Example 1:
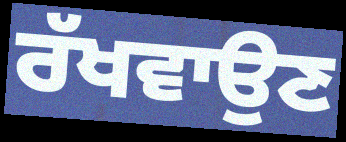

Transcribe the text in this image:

ਰੱਖਵਾਉਣ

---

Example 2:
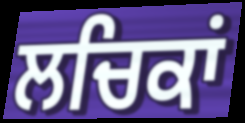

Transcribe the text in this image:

ਲਚਿਕਾਂ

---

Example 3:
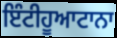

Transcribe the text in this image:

ਇੰਟੀਹੂਆਟਾਨਾ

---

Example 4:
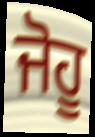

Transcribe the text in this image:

ਜੋਹੂ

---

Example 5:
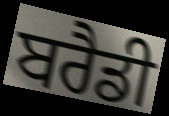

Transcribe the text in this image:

ਬਰੈਡੀ